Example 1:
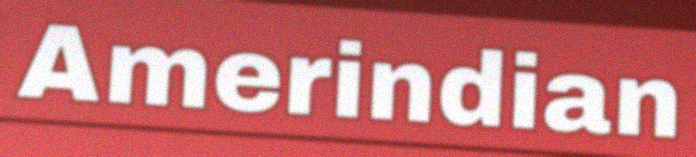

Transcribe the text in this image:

Amerindian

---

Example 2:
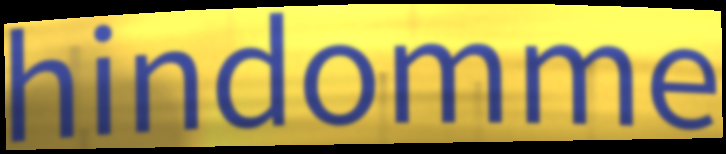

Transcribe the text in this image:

hindomme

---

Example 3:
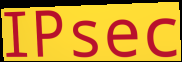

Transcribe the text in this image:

IPsec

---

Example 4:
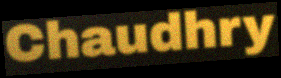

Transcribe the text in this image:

Chaudhry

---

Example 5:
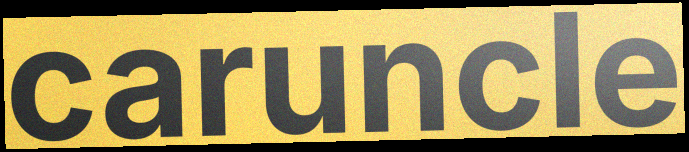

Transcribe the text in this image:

caruncle